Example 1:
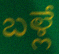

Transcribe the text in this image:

బళ్లే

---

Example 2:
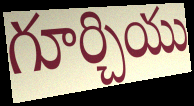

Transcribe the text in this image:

గూర్చియు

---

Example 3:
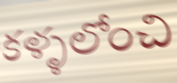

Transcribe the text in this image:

కళ్ళలోంచి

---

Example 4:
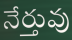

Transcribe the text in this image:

నేర్తువు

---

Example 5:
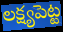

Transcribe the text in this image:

లక్ష్యపెట్ట